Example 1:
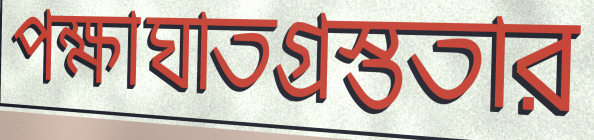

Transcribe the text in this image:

পক্ষাঘাতগ্রস্ততার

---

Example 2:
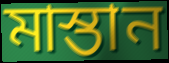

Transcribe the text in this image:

মাস্তান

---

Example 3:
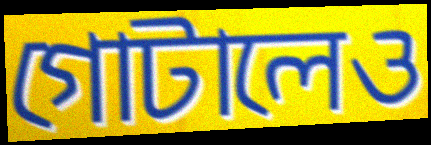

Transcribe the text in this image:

গোটালেও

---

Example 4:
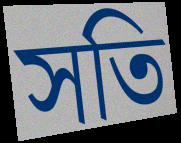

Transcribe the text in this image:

সতি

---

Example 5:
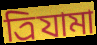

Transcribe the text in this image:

ত্রিযামা